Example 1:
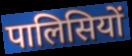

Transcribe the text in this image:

पालिसियों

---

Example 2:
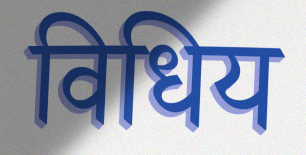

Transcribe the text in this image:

विधिय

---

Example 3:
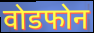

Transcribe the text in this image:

वोडफोन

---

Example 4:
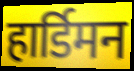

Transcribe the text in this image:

हार्डिमन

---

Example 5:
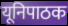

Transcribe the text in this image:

यूनिपाठक